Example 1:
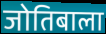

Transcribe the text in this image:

जोतिबाला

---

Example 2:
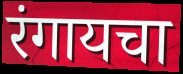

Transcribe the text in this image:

रंगायचा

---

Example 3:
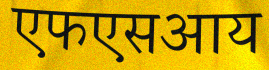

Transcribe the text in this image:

एफएसआय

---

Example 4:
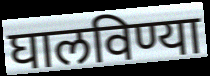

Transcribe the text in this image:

घालविण्या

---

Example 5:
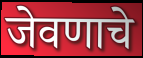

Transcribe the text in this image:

जेवणाचे